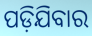
ପଡ଼ିଯିବାର